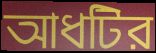
আধটির